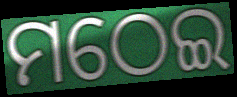
ମଠେଇ